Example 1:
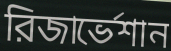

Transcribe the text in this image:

রিজার্ভেশান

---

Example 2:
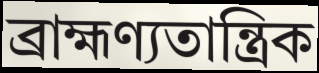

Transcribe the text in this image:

ব্রাহ্মণ্যতান্ত্রিক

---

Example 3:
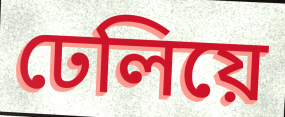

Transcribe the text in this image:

ঢেলিয়ে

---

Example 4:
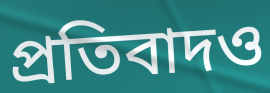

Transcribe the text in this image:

প্রতিবাদও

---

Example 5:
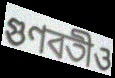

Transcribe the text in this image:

গুণবতীও